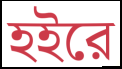
হইরে